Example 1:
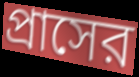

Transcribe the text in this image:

প্রাসের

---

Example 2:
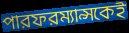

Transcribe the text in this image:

পারফরম্যান্সকেই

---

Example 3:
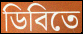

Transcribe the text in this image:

ডিবিতে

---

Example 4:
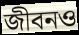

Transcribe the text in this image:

জীবনও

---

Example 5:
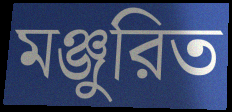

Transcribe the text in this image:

মঞ্জুরিত